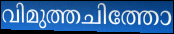
വിമുത്തചിത്തോ